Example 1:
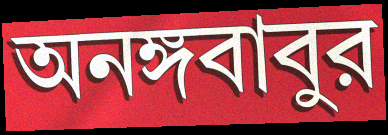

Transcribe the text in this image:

অনঙ্গবাবুর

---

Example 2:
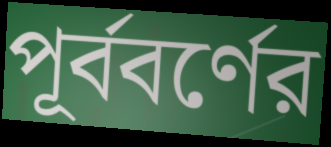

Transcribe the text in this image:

পূর্ববর্ণের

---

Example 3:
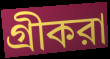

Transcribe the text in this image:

গ্রীকরা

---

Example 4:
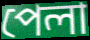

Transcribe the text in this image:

পেলা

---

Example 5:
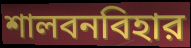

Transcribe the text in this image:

শালবনবিহার